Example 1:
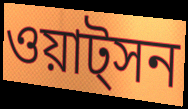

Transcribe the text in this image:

ওয়াট্সন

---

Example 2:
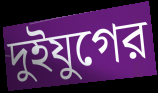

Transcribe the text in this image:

দুইযুগের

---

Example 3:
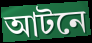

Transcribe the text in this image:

আটনে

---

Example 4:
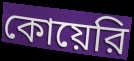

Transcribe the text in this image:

কোয়েরি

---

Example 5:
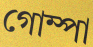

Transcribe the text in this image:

গোম্পা